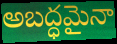
అబద్ధమైనా